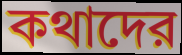
কথাদের